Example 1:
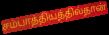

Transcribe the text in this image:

சம்பாத்தியத்தில்தான்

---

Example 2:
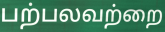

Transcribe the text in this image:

பற்பலவற்றை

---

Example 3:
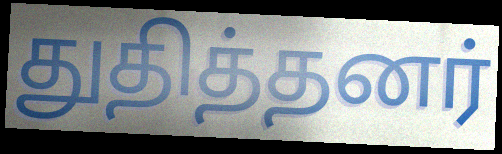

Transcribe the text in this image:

துதித்தனர்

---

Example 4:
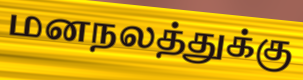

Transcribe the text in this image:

மனநலத்துக்கு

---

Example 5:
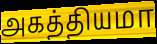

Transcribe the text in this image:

அகத்தியமா